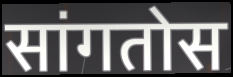
सांगतोस